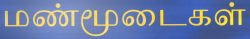
மண்மூடைகள்